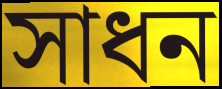
সাধন